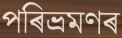
পৰিভ্ৰমণৰ